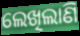
ଲେଖିଲାଣି